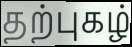
தற்புகழ்